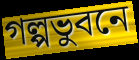
গল্পভুবনে